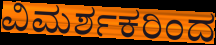
ವಿಮರ್ಶಕರಿಂದ